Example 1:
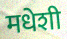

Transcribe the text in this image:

मधेशी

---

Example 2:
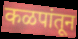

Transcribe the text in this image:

कळपांतून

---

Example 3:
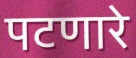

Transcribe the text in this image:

पटणारे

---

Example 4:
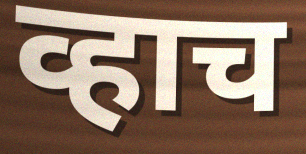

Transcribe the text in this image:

व्हाच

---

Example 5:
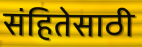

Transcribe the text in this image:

संहितेसाठी